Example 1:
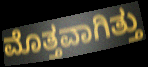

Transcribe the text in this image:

ಮೊತ್ತವಾಗಿತ್ತು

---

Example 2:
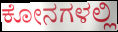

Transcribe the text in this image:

ಕೋನಗಳಲ್ಲಿ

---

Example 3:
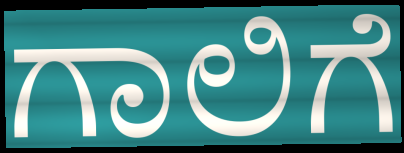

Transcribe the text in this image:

ಗಾಲಿಗೆ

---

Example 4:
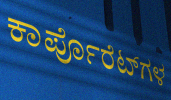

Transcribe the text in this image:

ಕಾರ್ಪೊರೆಟ್‌ಗಳ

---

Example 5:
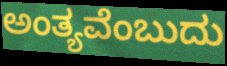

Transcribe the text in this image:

ಅಂತ್ಯವೆಂಬುದು